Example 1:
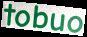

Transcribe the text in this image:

tobuo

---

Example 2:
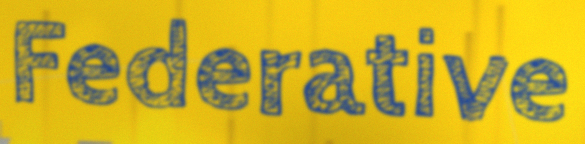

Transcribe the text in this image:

Federative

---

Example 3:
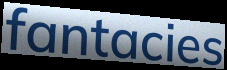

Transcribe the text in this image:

fantacies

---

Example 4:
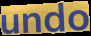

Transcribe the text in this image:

undo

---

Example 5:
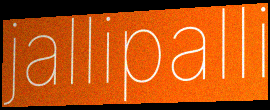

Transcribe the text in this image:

jallipalli